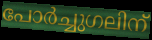
പോർച്ചുഗലിന്